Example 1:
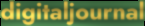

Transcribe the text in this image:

digitaljournal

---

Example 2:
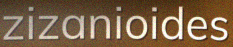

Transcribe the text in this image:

zizanioides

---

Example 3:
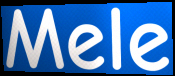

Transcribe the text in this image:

Mele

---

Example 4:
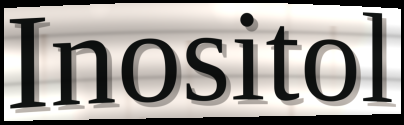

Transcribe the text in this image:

Inositol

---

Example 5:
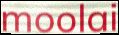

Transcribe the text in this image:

moolai